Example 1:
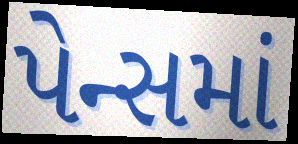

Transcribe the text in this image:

પેન્સમાં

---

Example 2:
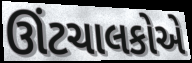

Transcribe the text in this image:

ઊંટચાલકોએ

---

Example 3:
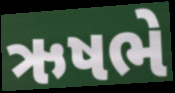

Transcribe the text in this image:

ઋષભે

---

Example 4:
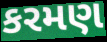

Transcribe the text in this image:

કરમણ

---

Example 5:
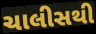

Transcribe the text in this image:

ચાલીસથી